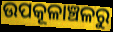
ଉପକୂଳାଞ୍ଚଳରୁ